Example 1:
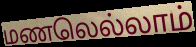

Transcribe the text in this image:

மணலெல்லாம்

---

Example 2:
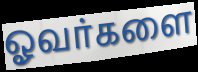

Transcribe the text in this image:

ஓவர்களை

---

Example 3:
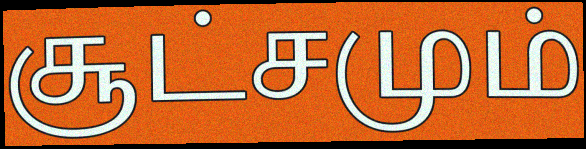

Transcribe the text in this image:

சூட்சமும்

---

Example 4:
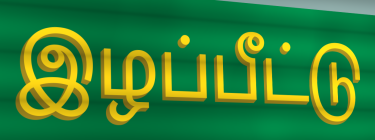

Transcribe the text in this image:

இழப்பீட்டு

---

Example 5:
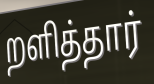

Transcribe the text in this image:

றளித்தார்